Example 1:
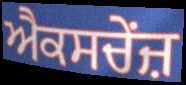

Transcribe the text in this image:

ਐਕਸਚੇਂਜ਼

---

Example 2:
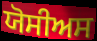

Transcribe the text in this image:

ਯੋਸੀਅਸ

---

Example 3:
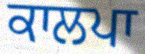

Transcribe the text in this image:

ਕਾਲਪਾ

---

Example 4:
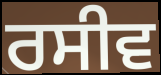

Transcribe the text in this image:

ਰਸੀਵ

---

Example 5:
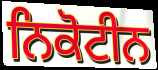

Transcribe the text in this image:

ਨਿਕੋਟੀਨ